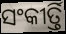
ସଂକୀର୍ତ୍ତି